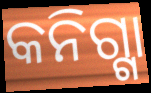
କନିଗ୍ଗା